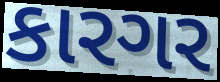
કારગર